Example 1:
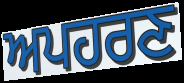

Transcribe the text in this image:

ਅਪਹਰਣ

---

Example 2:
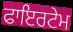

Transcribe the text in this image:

ਫਾਇਰਟੇਮ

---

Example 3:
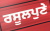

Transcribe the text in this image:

ਰਸੂਲਪੁਣੇ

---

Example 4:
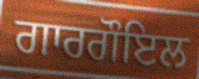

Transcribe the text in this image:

ਗਾਰਗੌਇਲ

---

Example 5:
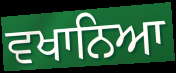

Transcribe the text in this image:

ਵਖਾਨਿਆ